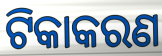
ଟିକାକରଣ